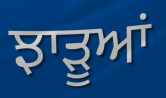
ਝਾੜੂਆਂ